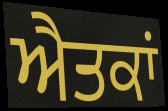
ਐਤਕਾਂ